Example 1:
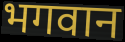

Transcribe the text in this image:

भगवान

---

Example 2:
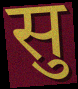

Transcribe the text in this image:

सु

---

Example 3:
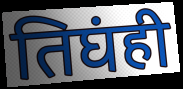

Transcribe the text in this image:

तिघंही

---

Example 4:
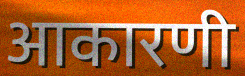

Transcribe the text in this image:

आकारणी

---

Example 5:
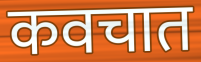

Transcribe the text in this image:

कवचात